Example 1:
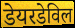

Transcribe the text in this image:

डेयरडेविल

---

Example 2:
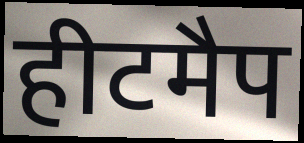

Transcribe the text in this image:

हीटमैप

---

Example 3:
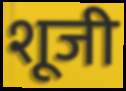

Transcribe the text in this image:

शूजी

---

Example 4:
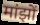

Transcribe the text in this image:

मांझों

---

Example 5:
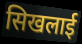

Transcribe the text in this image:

सिखलाई